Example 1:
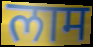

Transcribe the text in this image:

लाम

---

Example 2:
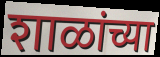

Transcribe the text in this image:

शाळांच्या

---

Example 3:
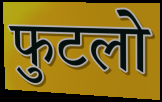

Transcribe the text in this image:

फुटलो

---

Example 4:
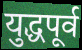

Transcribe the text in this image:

युद्धपूर्व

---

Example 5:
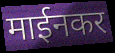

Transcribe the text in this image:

माईनकर